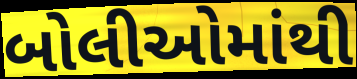
બોલીઓમાંથી